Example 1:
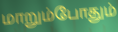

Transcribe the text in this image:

மாறும்போதும்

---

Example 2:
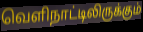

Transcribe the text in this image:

வெளிநாட்டிலிருக்கும்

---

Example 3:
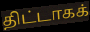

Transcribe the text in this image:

திட்டாகக்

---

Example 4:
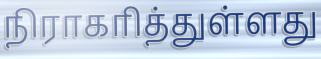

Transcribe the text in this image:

நிராகரித்துள்ளது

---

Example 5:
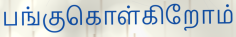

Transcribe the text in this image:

பங்குகொள்கிறோம்